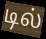
டில்